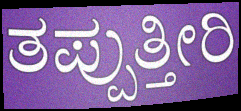
ತಪ್ಪುತ್ತೀರಿ